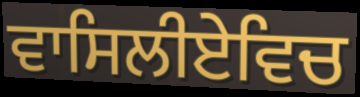
ਵਾਸਿਲੀਏਵਿਚ